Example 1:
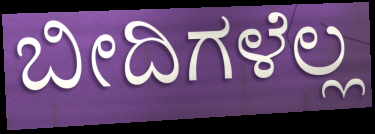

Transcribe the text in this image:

ಬೀದಿಗಳೆಲ್ಲ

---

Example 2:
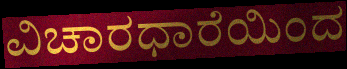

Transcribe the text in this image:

ವಿಚಾರಧಾರೆಯಿಂದ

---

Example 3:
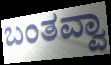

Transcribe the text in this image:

ಬಂತವ್ವಾ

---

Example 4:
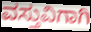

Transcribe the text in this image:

ವಸ್ತುವಿಗಾಗಿ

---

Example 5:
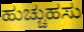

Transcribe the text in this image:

ಹುಚ್ಚುಹಸು